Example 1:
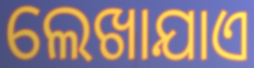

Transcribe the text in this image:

ଲେଖାଯାଏ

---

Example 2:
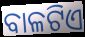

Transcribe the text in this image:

ବାଳଟିଏ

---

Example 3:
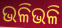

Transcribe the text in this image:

ଭଳିଭଳି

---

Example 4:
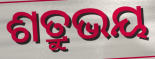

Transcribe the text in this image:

ଶତ୍ରୁଭୟ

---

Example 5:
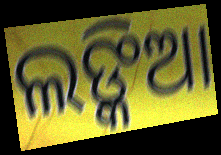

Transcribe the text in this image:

ଲଙ୍କିଆ